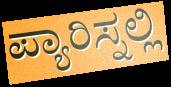
ಪ್ಯಾರಿಸ್ನಲ್ಲಿ